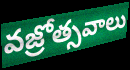
వజ్రోత్సవాలు